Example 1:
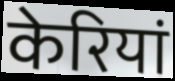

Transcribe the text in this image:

केरियां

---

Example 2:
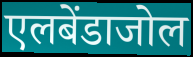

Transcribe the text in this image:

एलबेंडाजोल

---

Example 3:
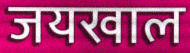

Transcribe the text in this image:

जयखाल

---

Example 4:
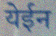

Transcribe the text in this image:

येईन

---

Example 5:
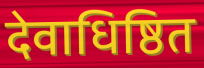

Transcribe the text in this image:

देवाधिष्ठित